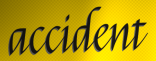
accident